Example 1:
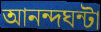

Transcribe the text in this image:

আনন্দঘন্টা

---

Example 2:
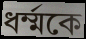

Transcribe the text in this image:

ধর্ম্মকে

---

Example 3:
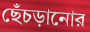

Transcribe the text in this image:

ছেঁচড়ানোর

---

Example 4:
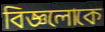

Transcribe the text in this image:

বিজ্ঞলোকে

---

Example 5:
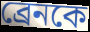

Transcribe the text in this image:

ব্রেনকে